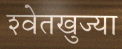
श्वेतखुज्या